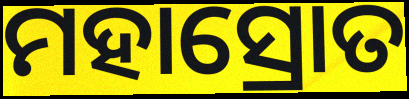
ମହାସ୍ରୋତ